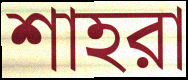
শাহরা